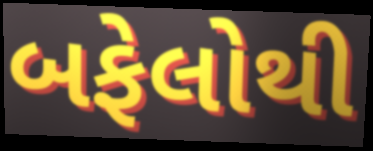
બફેલોથી